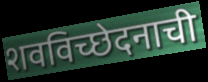
शवविच्छेदनाची